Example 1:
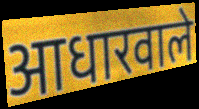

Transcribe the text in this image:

आधारवाले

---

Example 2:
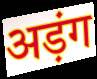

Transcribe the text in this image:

अड़ंग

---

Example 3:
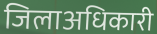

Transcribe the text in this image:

जिलाअधिकारी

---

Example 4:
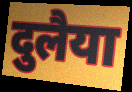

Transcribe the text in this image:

दुलैया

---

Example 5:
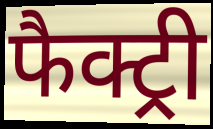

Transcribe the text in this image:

फैक्ट्री